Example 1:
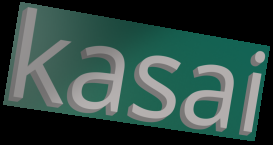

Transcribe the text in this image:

kasai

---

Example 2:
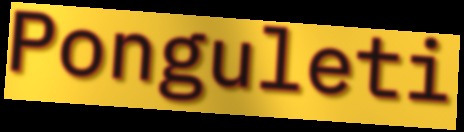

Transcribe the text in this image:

Ponguleti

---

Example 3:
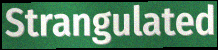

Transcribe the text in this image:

Strangulated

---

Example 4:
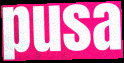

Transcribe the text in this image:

pusa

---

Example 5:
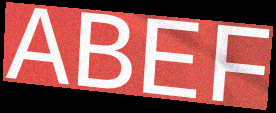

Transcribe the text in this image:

ABEF